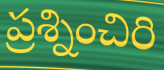
ప్రశ్నించిరి